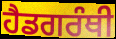
ਹੈਡਗਰੰਥੀ